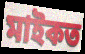
মাইকত